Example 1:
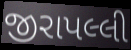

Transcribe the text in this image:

જીરાપલ્લી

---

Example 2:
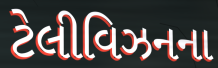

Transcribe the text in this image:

ટેલીવિઝનના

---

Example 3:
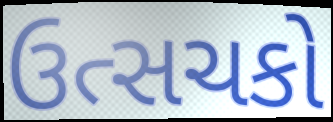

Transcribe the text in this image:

ઉત્સચકો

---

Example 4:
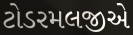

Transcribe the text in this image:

ટોડરમલજીએ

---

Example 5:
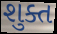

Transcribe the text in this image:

શુક્ત